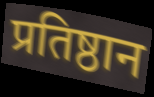
प्रतिष्ठान